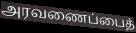
அரவணைப்பைத்